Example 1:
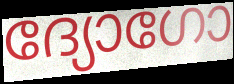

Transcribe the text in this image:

ദ്യോഗോ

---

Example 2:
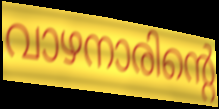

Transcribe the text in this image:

വാഴനാരിന്റെ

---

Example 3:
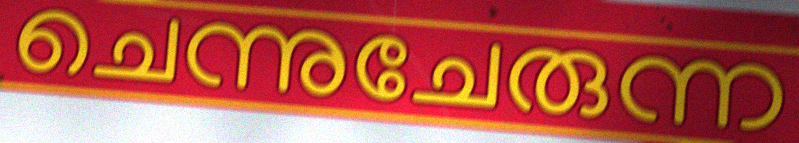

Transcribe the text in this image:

ചെന്നുചേരുന്ന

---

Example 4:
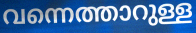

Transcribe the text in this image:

വന്നെത്താറുള്ള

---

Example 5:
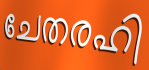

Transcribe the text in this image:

ചേതരഹി